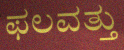
ಫಲವತ್ತು